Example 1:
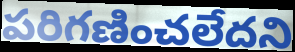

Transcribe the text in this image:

పరిగణించలేదని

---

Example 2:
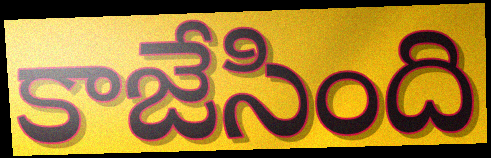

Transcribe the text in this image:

కాజేసింది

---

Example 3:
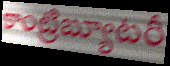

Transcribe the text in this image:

కాంట్రిబ్యూటరీ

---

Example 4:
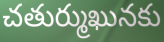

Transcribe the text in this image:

చతుర్ముఖునకు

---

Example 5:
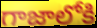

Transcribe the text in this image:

గాజాలోకి